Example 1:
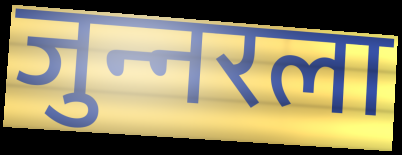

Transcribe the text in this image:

जुन्नरला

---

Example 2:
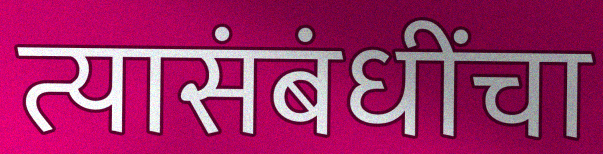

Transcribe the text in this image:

त्यासंबंधींचा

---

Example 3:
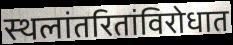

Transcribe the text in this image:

स्थलांतरितांविरोधात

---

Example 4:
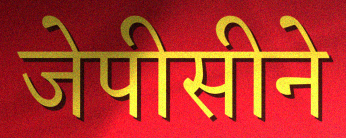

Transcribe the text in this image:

जेपीसीने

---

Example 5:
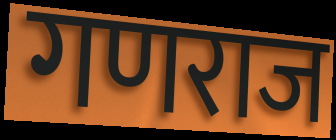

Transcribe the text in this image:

गणराज